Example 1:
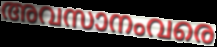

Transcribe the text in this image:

അവസാനംവരെ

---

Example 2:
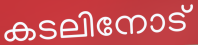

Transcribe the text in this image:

കടലിനോട്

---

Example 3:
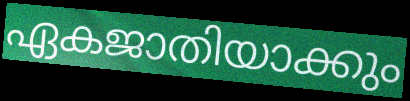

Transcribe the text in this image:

ഏകജാതിയാക്കും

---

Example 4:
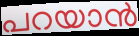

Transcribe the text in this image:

പറയാൻ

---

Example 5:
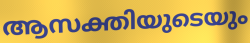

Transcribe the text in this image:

ആസക്തിയുടെയും